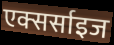
एक्सर्साइज